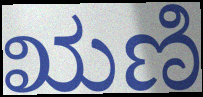
ಋಣಿ